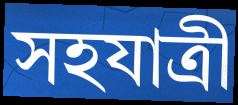
সহযাত্ৰী